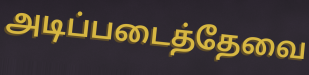
அடிப்படைத்தேவை